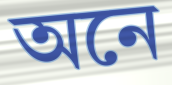
অনে